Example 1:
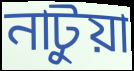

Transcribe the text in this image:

নাটুয়া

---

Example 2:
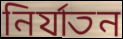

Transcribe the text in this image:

নির্যাতন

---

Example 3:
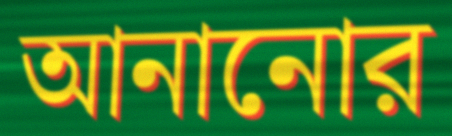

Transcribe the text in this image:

আনানোর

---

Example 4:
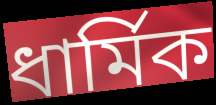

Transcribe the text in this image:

ধার্মিক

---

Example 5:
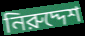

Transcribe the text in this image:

নিরুদ্দেশ